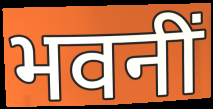
भवनीं